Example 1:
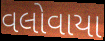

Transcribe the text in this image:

વલોવાયા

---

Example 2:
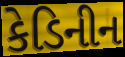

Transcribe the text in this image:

કેડિનીન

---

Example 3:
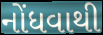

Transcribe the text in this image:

નોંધવાથી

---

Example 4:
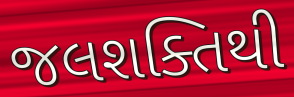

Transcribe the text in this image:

જલશક્તિથી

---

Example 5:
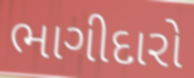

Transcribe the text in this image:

ભાગીદારો